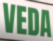
VEDA